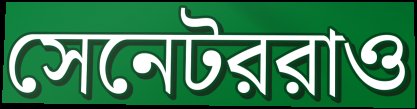
সেনেটররাও